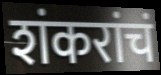
शंकरांचं